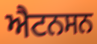
ਐਟਨਸਨ